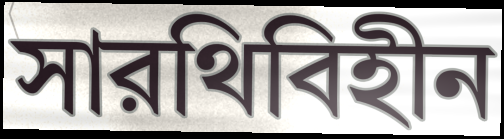
সারথিবিহীন